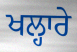
ਖਲ੍ਹਾਰੇ